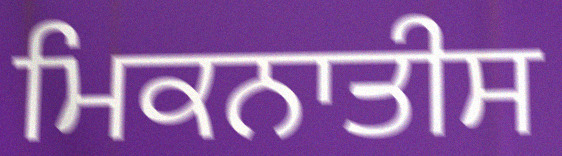
ਮਿਕਨਾਤੀਸ